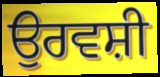
ਉਰਵਸ਼ੀ